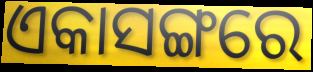
ଏକାସଙ୍ଗରେ